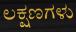
ಲಕ್ಷಣಗಳು